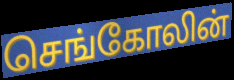
செங்கோலின்